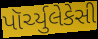
પૉર્ચ્યુલેકેસી